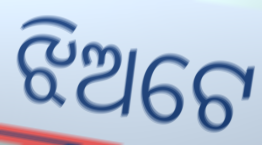
ଝିଅଟେ